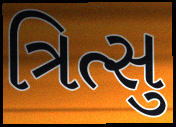
ત્રિત્સુ